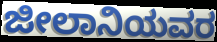
ಜೀಲಾನಿಯವರ